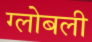
ग्लोबली